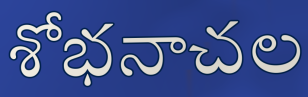
శోభనాచల